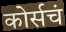
कोर्सचं